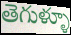
తెగుళ్ళూ